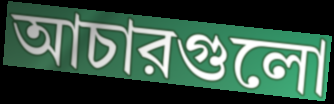
আচারগুলো